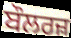
ਬੌਲਰਜ਼